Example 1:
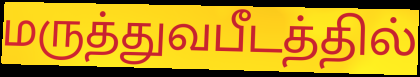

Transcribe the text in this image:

மருத்துவபீடத்தில்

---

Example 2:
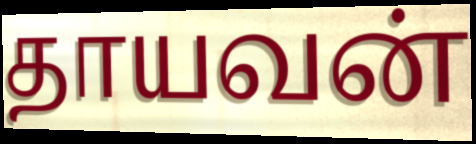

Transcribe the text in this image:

தாயவன்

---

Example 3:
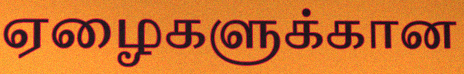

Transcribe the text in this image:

ஏழைகளுக்கான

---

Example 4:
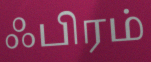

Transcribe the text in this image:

ஃபிரம்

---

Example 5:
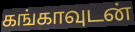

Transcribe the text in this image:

கங்காவுடன்